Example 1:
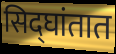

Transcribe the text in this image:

सिद्घांतात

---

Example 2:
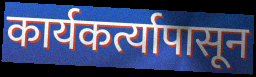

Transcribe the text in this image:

कार्यकर्त्यापासून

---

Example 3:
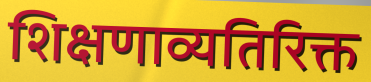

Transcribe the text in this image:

शिक्षणाव्यतिरिक्त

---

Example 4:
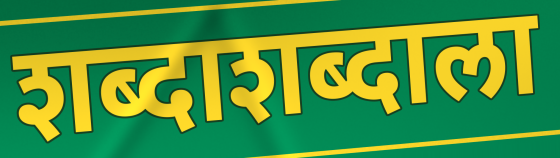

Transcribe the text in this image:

शब्दाशब्दाला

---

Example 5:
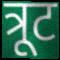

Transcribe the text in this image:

त्रूट